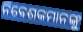
ନିବେଶକମାନଙ୍କୁ